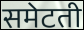
समेटती